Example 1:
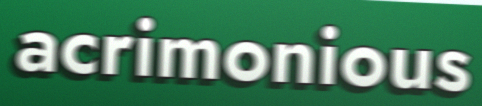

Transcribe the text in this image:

acrimonious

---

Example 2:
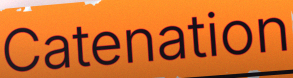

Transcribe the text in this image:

Catenation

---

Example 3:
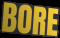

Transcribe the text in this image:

BORE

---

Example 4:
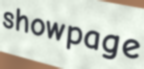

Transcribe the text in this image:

showpage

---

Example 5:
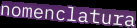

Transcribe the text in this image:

nomenclatura